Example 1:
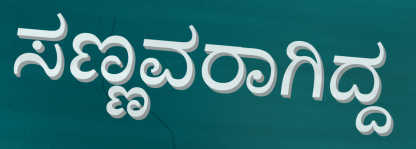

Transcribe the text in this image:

ಸಣ್ಣವರಾಗಿದ್ದ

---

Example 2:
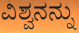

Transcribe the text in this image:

ವಿಶ್ವನನ್ನು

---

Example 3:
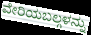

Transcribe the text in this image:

ವೇರಿಯಬಲ್ಗಳನ್ನು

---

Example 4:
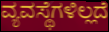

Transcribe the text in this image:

ವ್ಯವಸ್ಥೆಗಳಿಲ್ಲದೆ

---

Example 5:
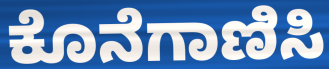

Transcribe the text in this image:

ಕೊನೆಗಾಣಿಸಿ